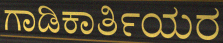
ಗಾಡಿಕಾರ್ತಿಯರ